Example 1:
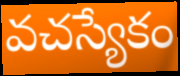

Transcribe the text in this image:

వచస్యేకం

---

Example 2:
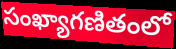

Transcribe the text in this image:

సంఖ్యాగణితంలో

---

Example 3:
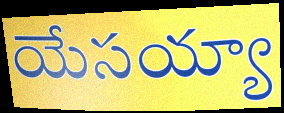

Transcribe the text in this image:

యేసయ్యా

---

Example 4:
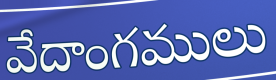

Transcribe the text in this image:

వేదాంగములు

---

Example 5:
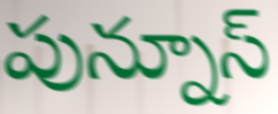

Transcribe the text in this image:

పున్నూస్